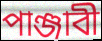
পাঞ্জাবী